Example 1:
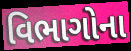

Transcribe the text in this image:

વિભાગોના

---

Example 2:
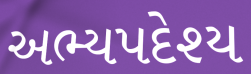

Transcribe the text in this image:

અભ્યપદેશ્ય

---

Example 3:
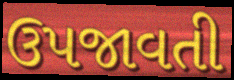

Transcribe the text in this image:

ઉપજાવતી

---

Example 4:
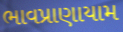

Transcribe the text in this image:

ભાવપ્રાણાયામ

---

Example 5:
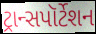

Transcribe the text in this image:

ટ્રાન્સપૉર્ટેશન